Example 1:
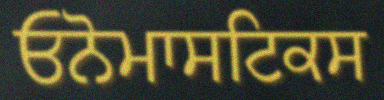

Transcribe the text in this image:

ਓਨੋਮਾਸਟਿਕਸ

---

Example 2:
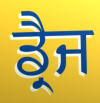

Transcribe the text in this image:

ਡ੍ਰੈਜ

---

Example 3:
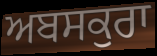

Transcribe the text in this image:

ਅਬਸਕੁਰਾ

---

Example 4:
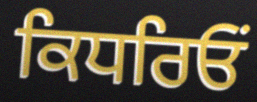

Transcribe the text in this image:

ਕਿਧਰਿਓਂ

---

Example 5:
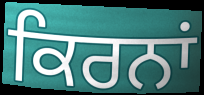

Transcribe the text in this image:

ਕਿਰਨਾਂ